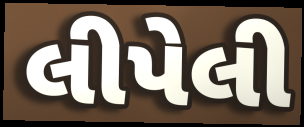
લીપેલી